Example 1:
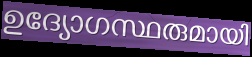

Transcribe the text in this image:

ഉദ്യോഗസ്ഥരുമായി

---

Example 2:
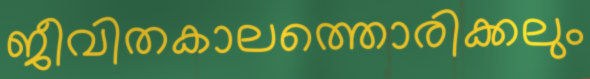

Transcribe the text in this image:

ജീവിതകാലത്തൊരിക്കലും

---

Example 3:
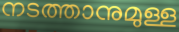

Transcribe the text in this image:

നടത്താനുമുള്ള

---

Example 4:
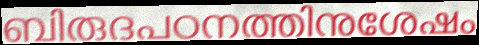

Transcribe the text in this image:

ബിരുദപഠനത്തിനുശേഷം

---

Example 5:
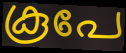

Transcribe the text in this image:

കൂപേ